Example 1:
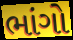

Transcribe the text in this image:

ભાંગો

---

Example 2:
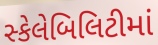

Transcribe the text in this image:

સ્કેલેબિલિટીમાં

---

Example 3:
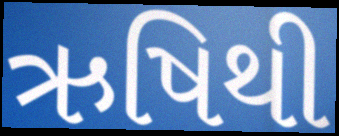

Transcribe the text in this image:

ઋષિથી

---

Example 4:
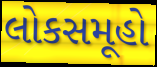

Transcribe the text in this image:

લોકસમૂહો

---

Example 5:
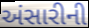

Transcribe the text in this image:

અંસારીની